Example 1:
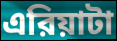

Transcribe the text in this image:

এরিয়াটা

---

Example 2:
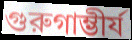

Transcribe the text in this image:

গুরুগাম্ভীর্য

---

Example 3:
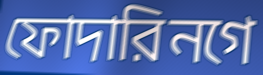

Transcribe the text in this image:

ফোদারিনগে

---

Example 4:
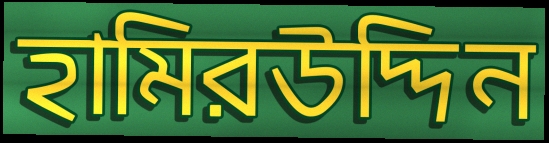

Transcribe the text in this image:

হামিরউদ্দিন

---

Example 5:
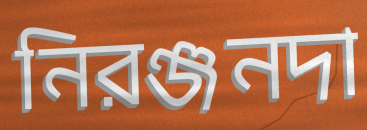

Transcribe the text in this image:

নিরঞ্জনদা